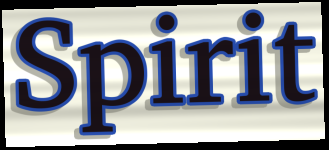
Spirit